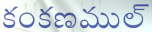
కంకణముల్